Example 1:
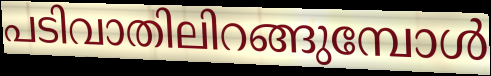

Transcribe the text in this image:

പടിവാതിലിറങ്ങുമ്പോൾ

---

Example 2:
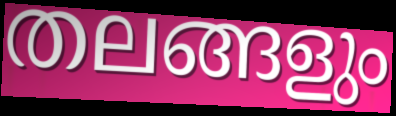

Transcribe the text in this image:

തലങ്ങളും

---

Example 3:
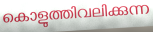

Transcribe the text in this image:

കൊളുത്തിവലിക്കുന്ന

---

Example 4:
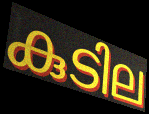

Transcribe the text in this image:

കുടില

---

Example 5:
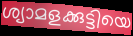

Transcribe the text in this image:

ശ്യാമളക്കുട്ടിയെ